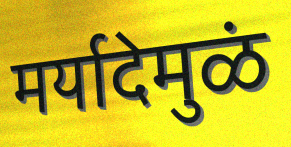
मर्यादेमुळं